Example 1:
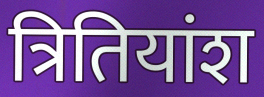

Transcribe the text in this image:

त्रितियांश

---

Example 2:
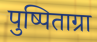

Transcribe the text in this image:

पुष्पिताग्रा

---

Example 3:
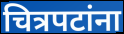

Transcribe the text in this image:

चित्रपटांना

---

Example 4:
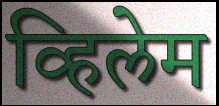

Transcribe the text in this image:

व्हिलेम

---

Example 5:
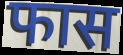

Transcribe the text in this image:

फास